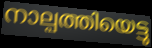
നാല്പത്തിയെട്ടു